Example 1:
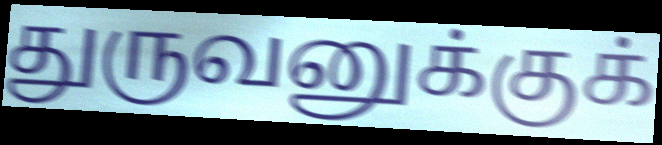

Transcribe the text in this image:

துருவனுக்குக்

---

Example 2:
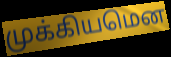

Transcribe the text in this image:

முக்கியமென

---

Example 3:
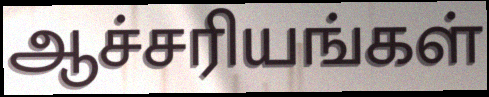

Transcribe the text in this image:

ஆச்சரியங்கள்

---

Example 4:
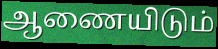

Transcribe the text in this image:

ஆணையிடும்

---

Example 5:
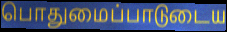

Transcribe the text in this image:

பொதுமைப்பாடுடைய